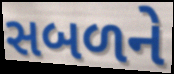
સબળને